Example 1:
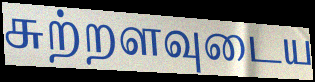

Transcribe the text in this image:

சுற்றளவுடைய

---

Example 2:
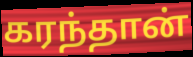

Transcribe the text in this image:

கரந்தான்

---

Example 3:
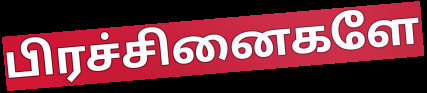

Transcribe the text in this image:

பிரச்சினைகளே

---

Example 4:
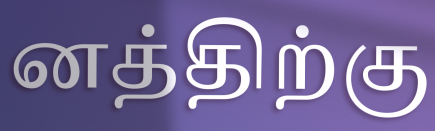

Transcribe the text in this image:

னத்திற்கு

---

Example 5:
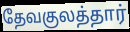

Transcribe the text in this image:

தேவகுலத்தார்